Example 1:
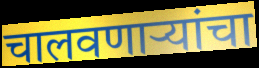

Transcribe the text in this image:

चालवणाऱ्यांचा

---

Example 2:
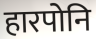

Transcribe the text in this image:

हारपोनि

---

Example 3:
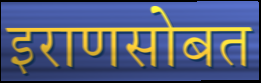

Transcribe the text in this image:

इराणसोबत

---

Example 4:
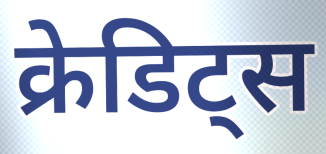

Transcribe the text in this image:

क्रेडिट्स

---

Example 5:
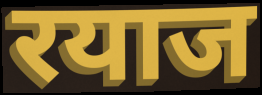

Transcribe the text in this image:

रयाज